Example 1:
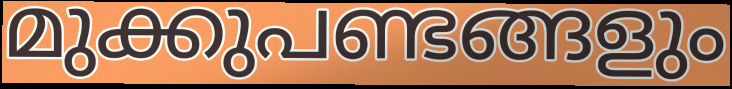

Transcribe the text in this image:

മുക്കുപണ്ടങ്ങളും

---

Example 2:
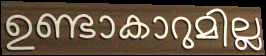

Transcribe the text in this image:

ഉണ്ടാകാറുമില്ല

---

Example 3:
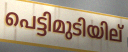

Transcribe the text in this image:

പെട്ടിമുടിയില്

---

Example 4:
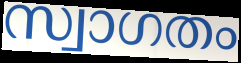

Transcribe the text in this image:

സ്വാഗതം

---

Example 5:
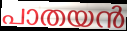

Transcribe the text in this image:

പാതയൻ